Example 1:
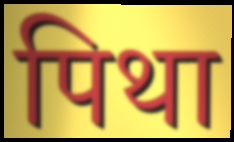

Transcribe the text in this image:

पिथा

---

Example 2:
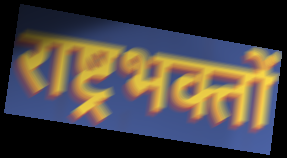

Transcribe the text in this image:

राष्ट्रभक्तों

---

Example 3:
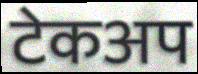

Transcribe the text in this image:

टेकअप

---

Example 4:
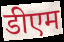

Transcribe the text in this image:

डीएम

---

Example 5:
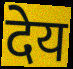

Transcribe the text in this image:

देय